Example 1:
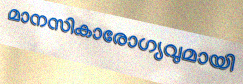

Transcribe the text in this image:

മാനസികാരോഗ്യവുമായി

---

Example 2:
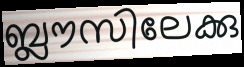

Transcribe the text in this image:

ബ്ലൗസിലേക്കു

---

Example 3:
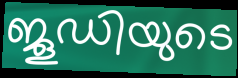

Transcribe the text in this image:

ജൂഡിയുടെ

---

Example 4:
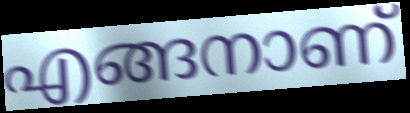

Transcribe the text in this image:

എങ്ങനാണ്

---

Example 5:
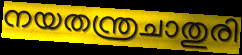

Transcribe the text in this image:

നയതന്ത്രചാതുരി